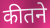
कीतने